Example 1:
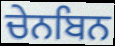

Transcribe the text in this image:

ਚੇਨਬਿਨ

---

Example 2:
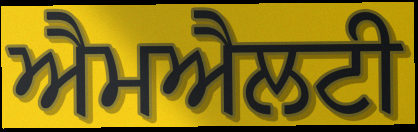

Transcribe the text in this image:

ਐਮਐਲਟੀ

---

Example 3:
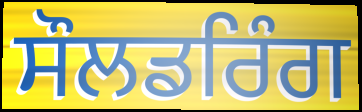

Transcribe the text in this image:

ਸੌਲਡਰਿੰਗ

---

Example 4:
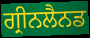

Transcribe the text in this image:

ਗ੍ਰੀਨਲੈਨਡ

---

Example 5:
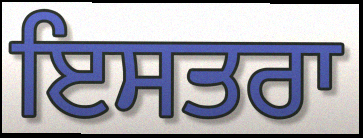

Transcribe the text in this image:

ਇਸਤਰਾ